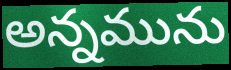
అన్నమును